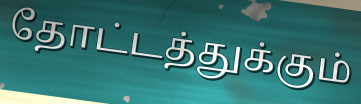
தோட்டத்துக்கும்